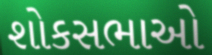
શોકસભાઓ